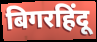
बिगरहिंदू